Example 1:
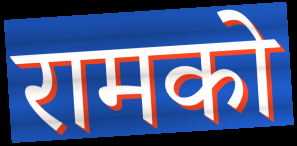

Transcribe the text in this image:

रामको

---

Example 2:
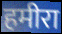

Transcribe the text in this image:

हमीरा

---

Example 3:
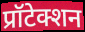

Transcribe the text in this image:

प्रॉटेक्शन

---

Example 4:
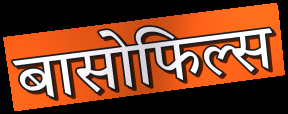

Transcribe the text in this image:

बासोफिल्स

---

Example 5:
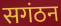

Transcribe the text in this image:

सगंठन